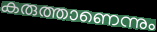
കരുത്താണെന്നും